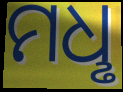
ମଧୢ